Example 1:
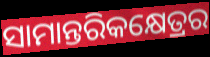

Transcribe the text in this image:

ସାମାନ୍ତରିକକ୍ଷେତ୍ରର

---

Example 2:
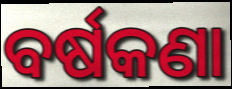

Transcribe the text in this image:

ବର୍ଷକଣା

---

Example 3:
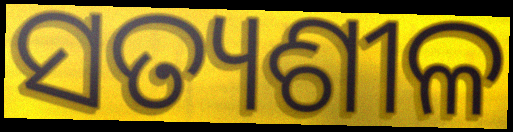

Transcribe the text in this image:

ସତ୍ୟଶୀଳ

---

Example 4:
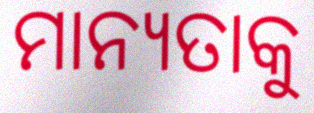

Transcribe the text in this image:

ମାନ୍ୟତାକୁ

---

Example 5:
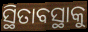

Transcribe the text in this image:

ସ୍ଥିତାବସ୍ଥାକୁ